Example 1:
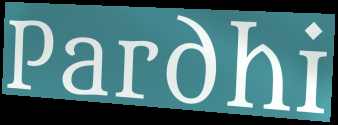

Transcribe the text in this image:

Pardhi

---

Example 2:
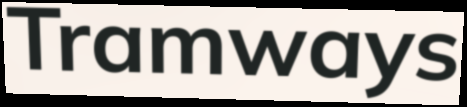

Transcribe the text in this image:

Tramways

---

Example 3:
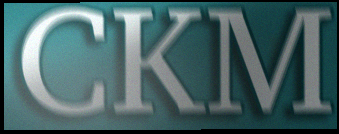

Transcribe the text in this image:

CKM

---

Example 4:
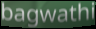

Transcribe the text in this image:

bagwathi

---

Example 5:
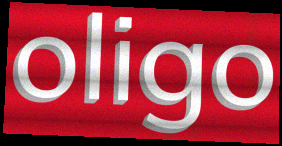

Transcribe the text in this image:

oligo